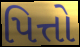
પિત્તો